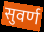
सुवर्ण